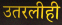
उतरलीही